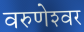
वरुणेश्वर